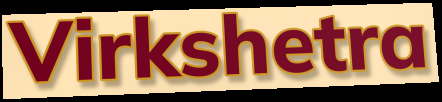
Virkshetra